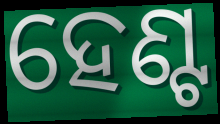
ହେଣ୍ଟ